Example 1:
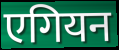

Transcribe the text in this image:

एगियन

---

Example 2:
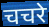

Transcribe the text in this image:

चचरे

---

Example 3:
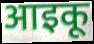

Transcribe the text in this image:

आइकू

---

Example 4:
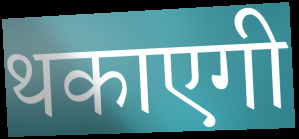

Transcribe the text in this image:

थकाएगी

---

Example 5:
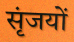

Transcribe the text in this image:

सृंजयों